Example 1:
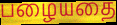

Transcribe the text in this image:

பழையதை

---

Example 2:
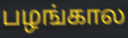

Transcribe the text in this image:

பழங்கால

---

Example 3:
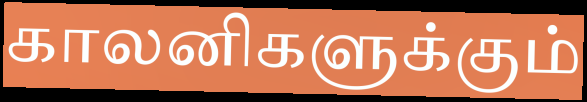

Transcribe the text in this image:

காலனிகளுக்கும்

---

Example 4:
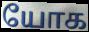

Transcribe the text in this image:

யோக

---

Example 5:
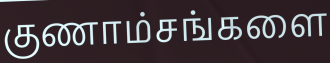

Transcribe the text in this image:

குணாம்சங்களை